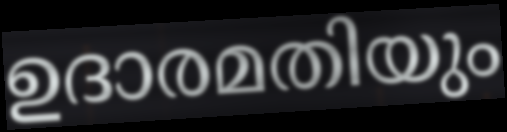
ഉദാരമതിയും